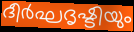
ദീർഘദൃഷ്ടിയും